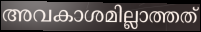
അവകാശമില്ലാത്തത്